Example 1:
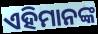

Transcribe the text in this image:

ଏହିମାନଙ୍କ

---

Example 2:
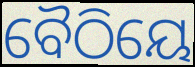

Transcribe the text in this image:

ବୈଠିୟେ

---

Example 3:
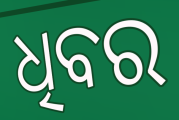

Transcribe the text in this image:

ଧିବର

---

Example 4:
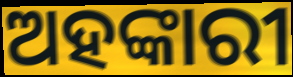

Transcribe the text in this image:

ଅହଙ୍କାରୀ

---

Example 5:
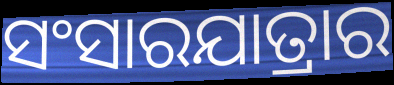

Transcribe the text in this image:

ସଂସାରଯାତ୍ରାର